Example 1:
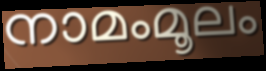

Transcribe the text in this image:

നാമംമൂലം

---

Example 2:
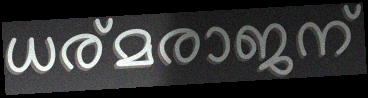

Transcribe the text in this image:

ധര്മരാജന്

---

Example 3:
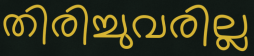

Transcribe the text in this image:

തിരിച്ചുവരില്ല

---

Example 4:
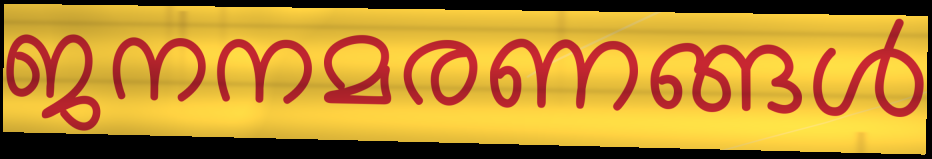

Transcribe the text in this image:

ജനനമരണങ്ങൾ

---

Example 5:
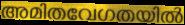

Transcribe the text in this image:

അമിതവേഗതയിൽ